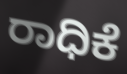
ರಾಧಿಕೆ